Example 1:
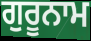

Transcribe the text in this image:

ਗੁਰੂਨਾਮ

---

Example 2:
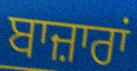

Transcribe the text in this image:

ਬਾਜ਼ਾਰਾਂ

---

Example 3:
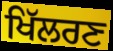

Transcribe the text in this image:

ਖਿੱਲਰਣ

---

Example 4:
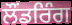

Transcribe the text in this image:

ਲੌਂਡਰਿੰਗ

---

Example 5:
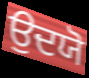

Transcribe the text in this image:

ਉਦਯੋ